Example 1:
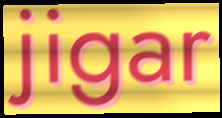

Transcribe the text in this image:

jigar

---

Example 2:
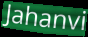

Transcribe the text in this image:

Jahanvi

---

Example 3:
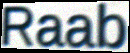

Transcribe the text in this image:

Raab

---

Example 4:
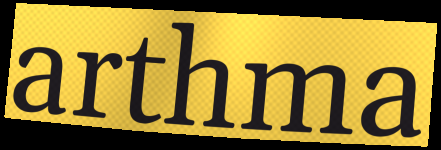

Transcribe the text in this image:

arthma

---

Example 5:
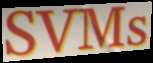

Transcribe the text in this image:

SVMs